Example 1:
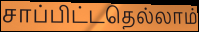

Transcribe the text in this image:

சாப்பிட்டதெல்லாம்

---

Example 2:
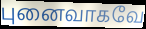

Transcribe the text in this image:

புனைவாகவே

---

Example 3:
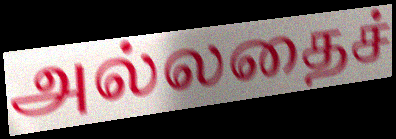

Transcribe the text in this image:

அல்லதைச்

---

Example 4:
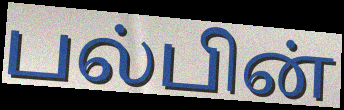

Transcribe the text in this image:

பல்பின்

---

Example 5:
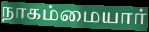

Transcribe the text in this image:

நாகம்மையார்